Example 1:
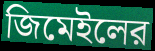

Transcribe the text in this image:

জিমেইলের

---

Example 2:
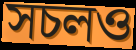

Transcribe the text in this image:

সচলও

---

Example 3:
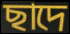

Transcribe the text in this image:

ছাদে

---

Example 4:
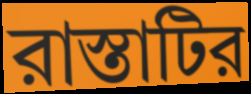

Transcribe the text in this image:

রাস্তাটির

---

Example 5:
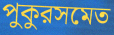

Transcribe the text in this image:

পুকুরসমেত